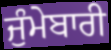
ਜੁੰਮੇਬਾਰੀ